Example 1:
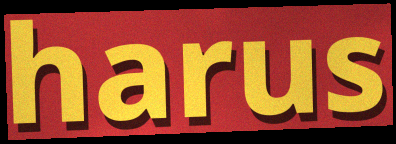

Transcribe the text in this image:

harus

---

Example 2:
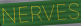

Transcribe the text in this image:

NERVES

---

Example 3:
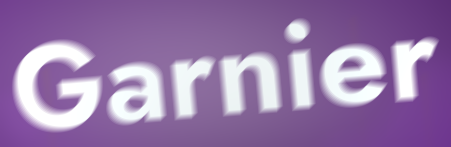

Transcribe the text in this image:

Garnier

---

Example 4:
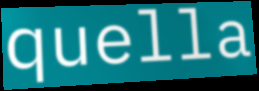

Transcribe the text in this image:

quella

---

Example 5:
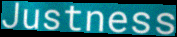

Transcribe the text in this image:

Justness